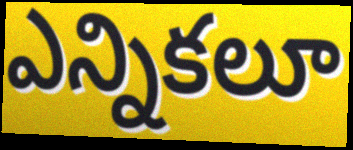
ఎన్నికలూ